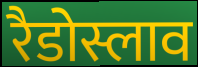
रैडोस्लाव